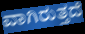
ವಾಗಿರುತ್ತದೆ